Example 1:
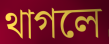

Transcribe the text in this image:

থাগলে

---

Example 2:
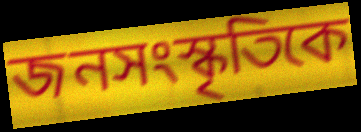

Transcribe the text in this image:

জনসংস্কৃতিকে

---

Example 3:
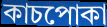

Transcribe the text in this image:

কাচপোকা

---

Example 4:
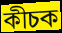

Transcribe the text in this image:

কীচক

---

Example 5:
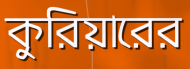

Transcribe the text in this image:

কুরিয়ারের